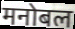
मनोबल